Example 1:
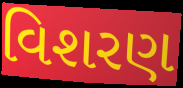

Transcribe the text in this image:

વિશરણ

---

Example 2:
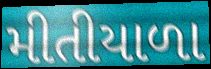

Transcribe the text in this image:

મીતીયાળા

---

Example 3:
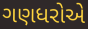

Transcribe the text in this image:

ગણધરોએ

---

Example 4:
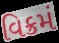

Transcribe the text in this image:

વિક્રમં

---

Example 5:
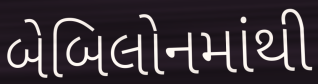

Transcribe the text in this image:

બેબિલોનમાંથી